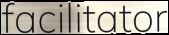
facilitator